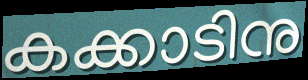
കക്കാടിനു